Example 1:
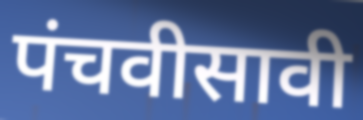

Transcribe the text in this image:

पंचवीसावी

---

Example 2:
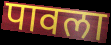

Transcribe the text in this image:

पावला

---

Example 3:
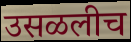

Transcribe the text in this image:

उसळलीच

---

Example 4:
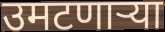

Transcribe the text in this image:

उमटणाऱ्या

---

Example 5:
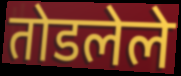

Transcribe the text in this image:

तोडलेले